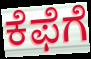
ಕೆಫೆಗೆ